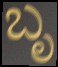
ಬೃ